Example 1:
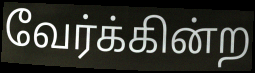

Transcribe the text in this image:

வேர்க்கின்ற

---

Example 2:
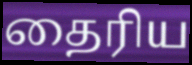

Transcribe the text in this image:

தைரிய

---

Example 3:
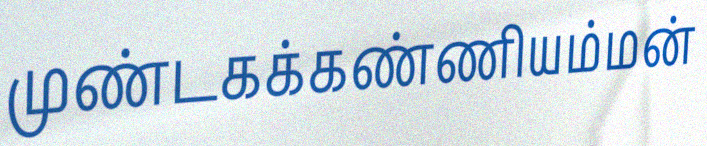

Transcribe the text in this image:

முண்டகக்கண்ணியம்மன்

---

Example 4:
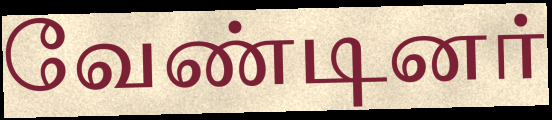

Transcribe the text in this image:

வேண்டினர்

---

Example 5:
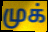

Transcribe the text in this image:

முக்